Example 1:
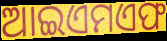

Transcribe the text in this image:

ଆଇଏମଏଫ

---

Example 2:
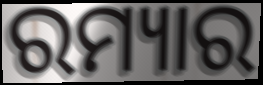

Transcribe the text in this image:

ରମ୍ୟାର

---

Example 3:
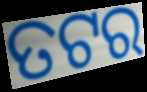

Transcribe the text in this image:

ତଟର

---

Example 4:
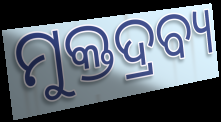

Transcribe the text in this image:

ମୁକ୍ତଦ୍ରବ୍ୟ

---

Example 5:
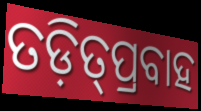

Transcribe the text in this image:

ତଡ଼ିତ୍‌ପ୍ରବାହ